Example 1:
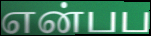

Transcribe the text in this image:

என்பப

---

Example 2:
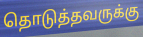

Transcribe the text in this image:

தொடுத்தவருக்கு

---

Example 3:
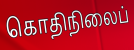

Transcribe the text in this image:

கொதிநிலைப்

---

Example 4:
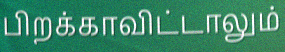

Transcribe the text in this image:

பிறக்காவிட்டாலும்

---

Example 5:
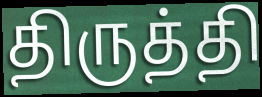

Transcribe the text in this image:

திருத்தி